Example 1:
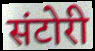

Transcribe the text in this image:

संटोरी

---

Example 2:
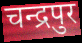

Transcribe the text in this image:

चन्द्रपुर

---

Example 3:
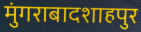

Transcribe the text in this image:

मुंगराबादशाहपुर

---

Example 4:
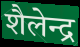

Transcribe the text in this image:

शैलेन्द्र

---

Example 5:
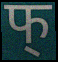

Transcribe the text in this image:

फ्